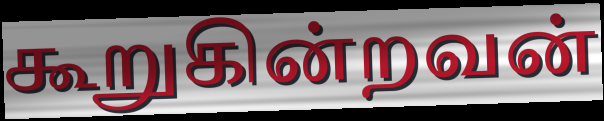
கூறுகின்றவன்